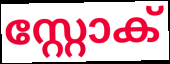
സ്റ്റോക്